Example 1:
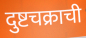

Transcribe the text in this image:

दुष्टचक्राची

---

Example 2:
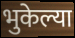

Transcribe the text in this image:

भुकेल्या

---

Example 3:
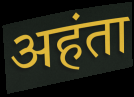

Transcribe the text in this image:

अहंता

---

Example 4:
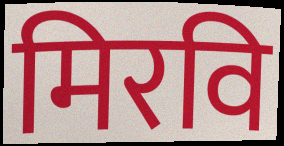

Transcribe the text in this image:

मिरवि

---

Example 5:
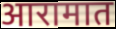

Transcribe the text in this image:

आरामात